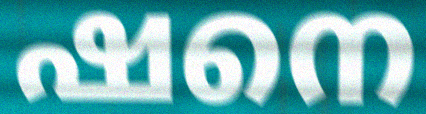
ഷനെ